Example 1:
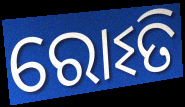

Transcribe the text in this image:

ରୋଽତି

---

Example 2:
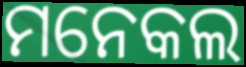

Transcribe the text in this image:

ମନେକଲ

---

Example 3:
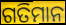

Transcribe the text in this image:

ଗତିମାନ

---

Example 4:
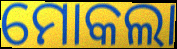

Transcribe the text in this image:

ମୋକଲା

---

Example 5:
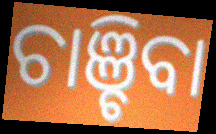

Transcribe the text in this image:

ଚାଞ୍ଚିବା